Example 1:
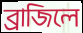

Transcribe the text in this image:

ব্রাজিলে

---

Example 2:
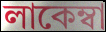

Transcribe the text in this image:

লাকেম্বা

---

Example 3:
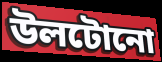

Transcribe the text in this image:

উলটোনো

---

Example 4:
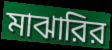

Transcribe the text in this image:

মাঝারির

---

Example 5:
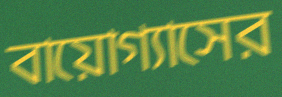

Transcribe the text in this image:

বায়োগ্যাসের